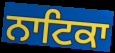
ਨਾਟਿਕਾ